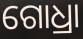
ଗୋଧ୍ରା